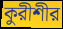
কুরীশীর